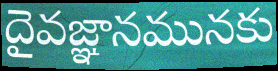
దైవజ్ఞానమునకు